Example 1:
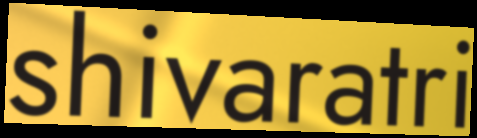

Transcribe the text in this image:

shivaratri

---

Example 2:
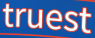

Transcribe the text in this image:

truest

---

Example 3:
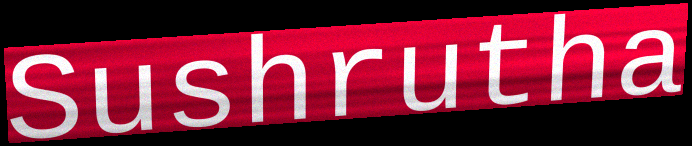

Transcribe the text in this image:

Sushrutha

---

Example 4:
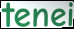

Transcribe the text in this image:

tenei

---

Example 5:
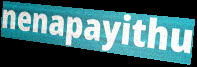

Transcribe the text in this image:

nenapayithu